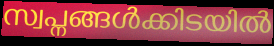
സ്വപ്നങ്ങൾക്കിടയിൽ